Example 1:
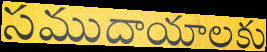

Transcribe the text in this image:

సముదాయాలకు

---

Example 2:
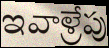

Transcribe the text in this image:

ఇవాళ్రేపు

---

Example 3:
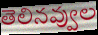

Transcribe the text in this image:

తెలినవ్వుల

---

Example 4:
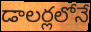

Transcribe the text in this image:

డాలర్లలోనే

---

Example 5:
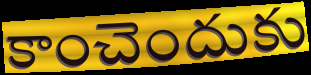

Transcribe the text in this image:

కాంచెందుకు